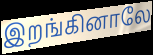
இறங்கினாலே